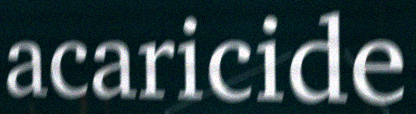
acaricide